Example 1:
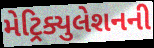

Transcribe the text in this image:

મેટ્રિક્યુલેશનની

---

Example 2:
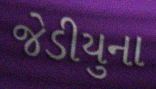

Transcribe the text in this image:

જેડીયુના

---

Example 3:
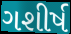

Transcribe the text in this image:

ગશીર્ષ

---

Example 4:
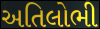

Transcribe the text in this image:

અતિલોભી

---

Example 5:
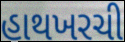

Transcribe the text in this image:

હાથખરચી